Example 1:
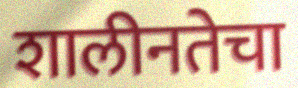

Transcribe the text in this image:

शालीनतेचा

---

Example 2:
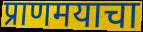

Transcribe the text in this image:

प्राणमयाचा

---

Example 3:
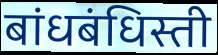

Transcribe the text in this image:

बांधबंधिस्ती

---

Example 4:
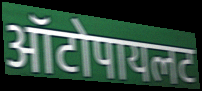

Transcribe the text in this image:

ऑटोपायलट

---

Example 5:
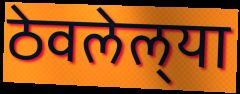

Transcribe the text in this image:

ठेवलेल्या